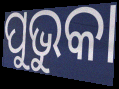
ପୁଭୁକା